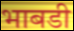
भाबडी